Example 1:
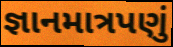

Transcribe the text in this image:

જ્ઞાનમાત્રપણું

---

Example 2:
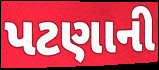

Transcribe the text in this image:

પટણાની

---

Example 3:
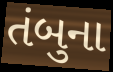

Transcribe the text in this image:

તંબુના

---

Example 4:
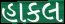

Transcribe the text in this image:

હાકલ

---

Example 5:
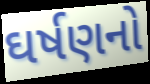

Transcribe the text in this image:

ઘર્ષણનો